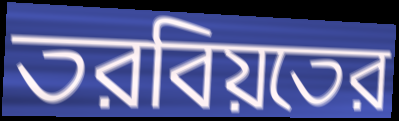
তরবিয়তের